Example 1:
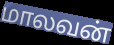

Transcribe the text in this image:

மாலவன்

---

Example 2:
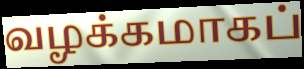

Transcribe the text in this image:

வழக்கமாகப்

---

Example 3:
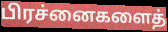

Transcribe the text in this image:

பிரச்னைகளைத்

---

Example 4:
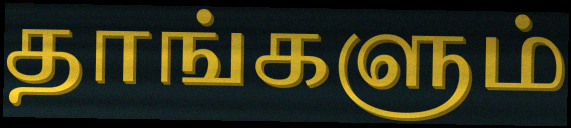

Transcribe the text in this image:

தாங்களும்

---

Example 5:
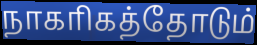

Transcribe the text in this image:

நாகரிகத்தோடும்